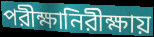
পরীক্ষানিরীক্ষায়